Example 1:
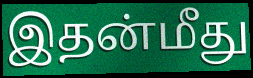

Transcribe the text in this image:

இதன்மீது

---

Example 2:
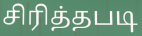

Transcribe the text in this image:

சிரித்தபடி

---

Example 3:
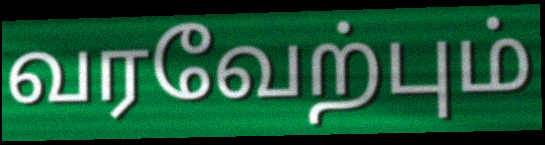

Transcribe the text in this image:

வரவேற்பும்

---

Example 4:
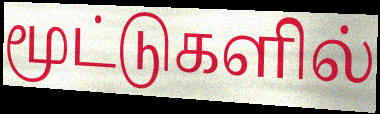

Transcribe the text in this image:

மூட்டுகளில்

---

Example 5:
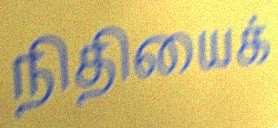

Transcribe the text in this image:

நிதியைக்